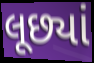
લૂછ્યાં